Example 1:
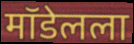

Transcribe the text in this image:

मॉडेलला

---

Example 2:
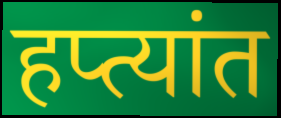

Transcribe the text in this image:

हप्त्यांत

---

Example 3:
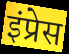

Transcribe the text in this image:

इंप्रेस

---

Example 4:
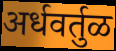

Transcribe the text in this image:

अर्धवर्तुळ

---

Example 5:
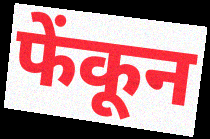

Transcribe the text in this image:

फेंकून